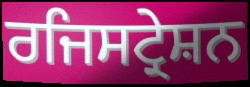
ਰਜਿਸਟ੍ਰੇਸ਼ਨ